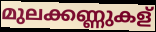
മുലക്കണ്ണുകള്